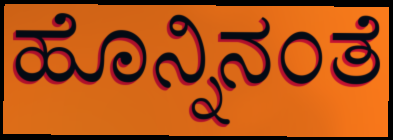
ಹೊನ್ನಿನಂತೆ